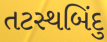
તટસ્થબિંદુ